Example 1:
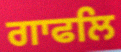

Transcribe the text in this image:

ਗਾਫਲਿ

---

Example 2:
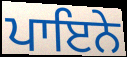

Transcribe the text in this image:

ਪਾਇਨੇ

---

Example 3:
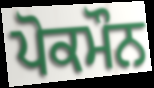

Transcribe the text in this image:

ਪੋਕਮੌਨ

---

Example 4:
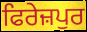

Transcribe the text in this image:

ਫਿਰੇਜ਼ਪੁਰ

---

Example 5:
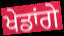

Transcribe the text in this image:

ਖੇਡਾਂਗੇ